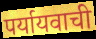
पर्यायवाची